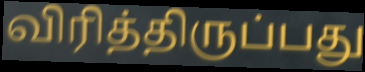
விரித்திருப்பது